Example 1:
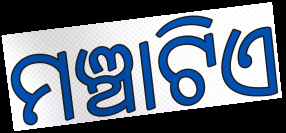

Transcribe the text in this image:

ମଞ୍ଚାଟିଏ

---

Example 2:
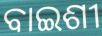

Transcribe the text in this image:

ବାଇଶୀ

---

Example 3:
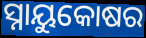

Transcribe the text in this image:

ସ୍ନାୟୁକୋଷର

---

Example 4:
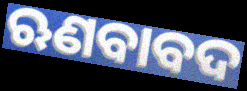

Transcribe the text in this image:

ଋଣବାବଦ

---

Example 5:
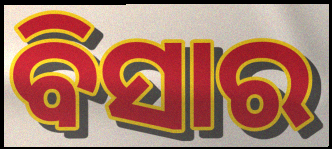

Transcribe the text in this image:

ବିସାର